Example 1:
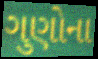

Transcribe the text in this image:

ગુણોના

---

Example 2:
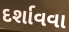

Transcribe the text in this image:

દર્શાવવા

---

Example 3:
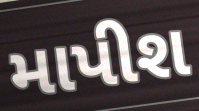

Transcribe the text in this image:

માપીશ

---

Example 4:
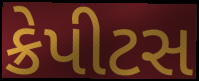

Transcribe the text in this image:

ક્રેપીટસ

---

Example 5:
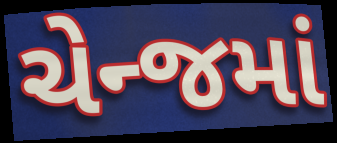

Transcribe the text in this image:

ચેન્જમાં